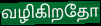
வழிகிறதோ